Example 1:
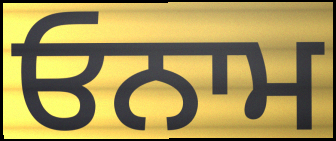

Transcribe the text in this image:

ਓਨਾਮ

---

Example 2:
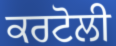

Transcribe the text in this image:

ਕਰਟੋਲੀ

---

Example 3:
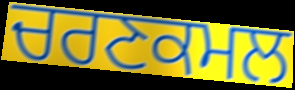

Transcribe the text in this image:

ਚਰਣਕਮਲ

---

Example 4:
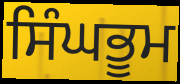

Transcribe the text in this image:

ਸਿੰਘਭੂਮ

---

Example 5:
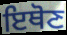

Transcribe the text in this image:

ਇਥੋਣ